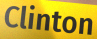
Clinton